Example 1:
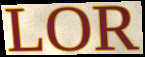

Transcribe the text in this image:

LOR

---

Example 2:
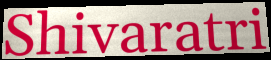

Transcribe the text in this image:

Shivaratri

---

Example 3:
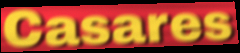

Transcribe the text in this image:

Casares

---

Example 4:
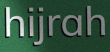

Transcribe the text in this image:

hijrah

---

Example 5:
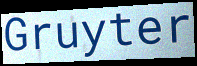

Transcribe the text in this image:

Gruyter